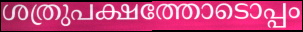
ശത്രുപക്ഷത്തോടൊപ്പം